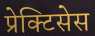
प्रेक्टिसेस